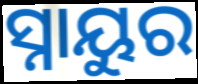
ସ୍ନାୟୁର